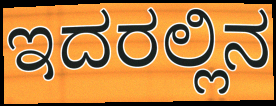
ಇದರಲ್ಲಿನ